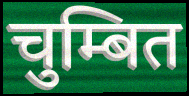
चुम्बित